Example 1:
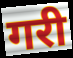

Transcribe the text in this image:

गरी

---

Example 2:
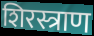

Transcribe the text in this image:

शिरस्त्राण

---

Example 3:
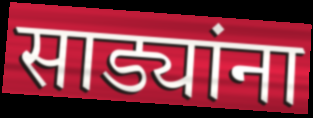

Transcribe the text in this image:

साड्यांना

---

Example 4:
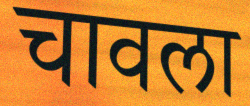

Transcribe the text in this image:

चावला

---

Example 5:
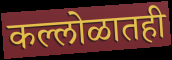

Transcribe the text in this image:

कल्लोळातही